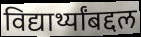
विद्यार्थ्यांबद्दल